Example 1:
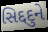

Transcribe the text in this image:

સિદ્દદુને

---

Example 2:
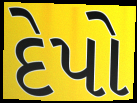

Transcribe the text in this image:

દેપો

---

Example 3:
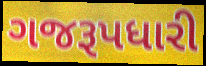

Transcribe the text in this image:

ગજરૂપધારી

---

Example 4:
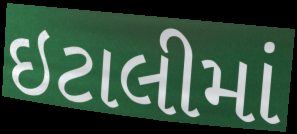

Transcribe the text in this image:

ઇટાલીમાં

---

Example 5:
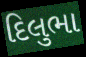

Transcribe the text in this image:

દિલુભા